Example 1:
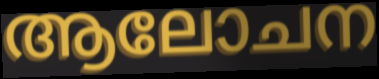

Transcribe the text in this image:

ആലോചന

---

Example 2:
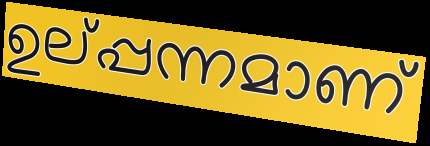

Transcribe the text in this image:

ഉല്പ്പന്നമാണ്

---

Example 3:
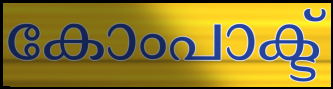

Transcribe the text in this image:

കോംപാക്ട്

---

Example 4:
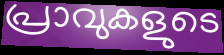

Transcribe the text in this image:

പ്രാവുകളുടെ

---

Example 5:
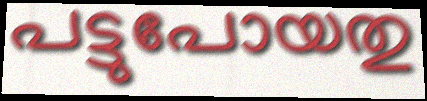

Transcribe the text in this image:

പട്ടുപോയതു